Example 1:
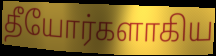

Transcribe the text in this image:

தீயோர்களாகிய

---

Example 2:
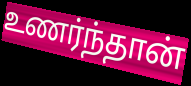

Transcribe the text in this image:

உணர்ந்தான்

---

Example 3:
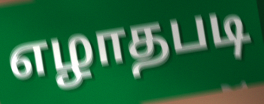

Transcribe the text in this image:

எழாதபடி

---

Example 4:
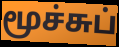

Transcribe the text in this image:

மூச்சுப்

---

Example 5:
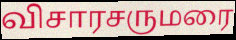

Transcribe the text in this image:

விசாரசருமரை